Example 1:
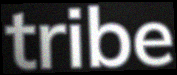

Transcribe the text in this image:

tribe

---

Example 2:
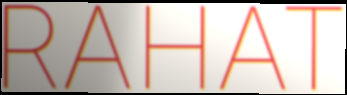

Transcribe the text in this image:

RAHAT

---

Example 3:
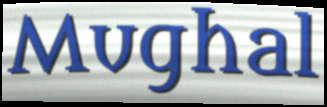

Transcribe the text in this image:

Mughal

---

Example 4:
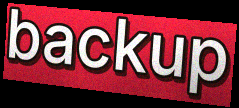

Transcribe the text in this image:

backup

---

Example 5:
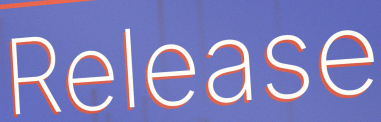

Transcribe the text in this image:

Release